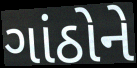
ગાંઠોને